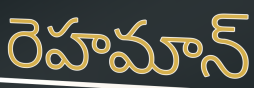
రెహమాన్